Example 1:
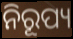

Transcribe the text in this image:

ନିରୂପ୍ୟ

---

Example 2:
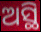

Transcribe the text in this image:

ଅସ୍ଥି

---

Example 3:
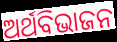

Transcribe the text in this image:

ଅର୍ଥବିଭାଜନ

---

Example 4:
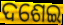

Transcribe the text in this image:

ଦଶେଇ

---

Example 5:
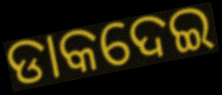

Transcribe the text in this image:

ଡାକଦେଇ